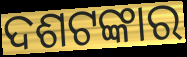
ଦଶଟଙ୍କାର